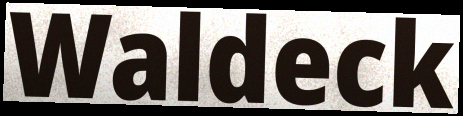
Waldeck